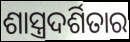
ଶାସ୍ତ୍ରଦର୍ଶିତାର